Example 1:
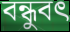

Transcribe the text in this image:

বন্ধুবৎ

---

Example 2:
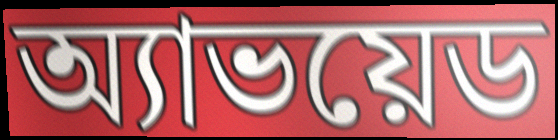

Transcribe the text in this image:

অ্যাভয়েড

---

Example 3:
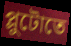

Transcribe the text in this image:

প্লুটোতে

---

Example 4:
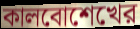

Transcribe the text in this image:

কালবোশেখের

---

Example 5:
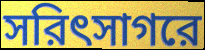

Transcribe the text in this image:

সরিৎসাগরে